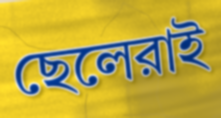
ছেলেরাই